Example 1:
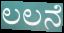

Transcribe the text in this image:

ಲಲನೆ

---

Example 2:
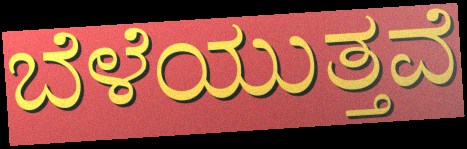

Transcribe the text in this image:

ಬೆಳೆಯುತ್ತವೆ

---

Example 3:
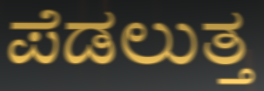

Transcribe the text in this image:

ಪೆಡಲುತ್ತ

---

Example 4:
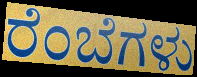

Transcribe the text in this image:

ರೆಂಬೆಗಳು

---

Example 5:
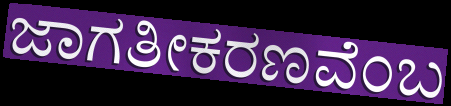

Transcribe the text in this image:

ಜಾಗತೀಕರಣವೆಂಬ